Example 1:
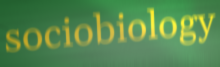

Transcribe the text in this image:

sociobiology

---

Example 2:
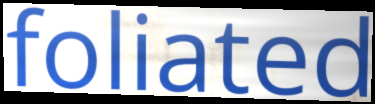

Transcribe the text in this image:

foliated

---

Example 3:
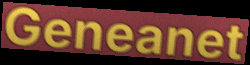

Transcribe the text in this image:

Geneanet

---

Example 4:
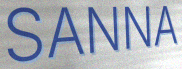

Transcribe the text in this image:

SANNA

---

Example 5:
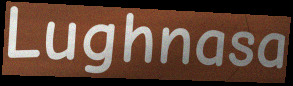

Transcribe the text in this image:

Lughnasa